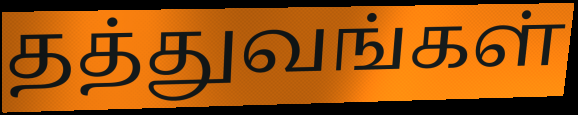
தத்துவங்கள்